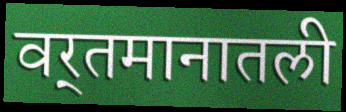
वर्तमानातली